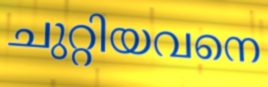
ചുറ്റിയവനെ